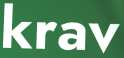
krav